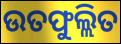
ଉତଫୁଲ୍ଲିତ